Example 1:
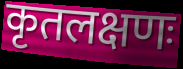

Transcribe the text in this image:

कृतलक्षणः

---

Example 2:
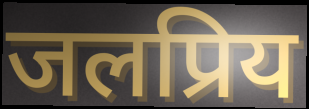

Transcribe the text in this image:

जलप्रिय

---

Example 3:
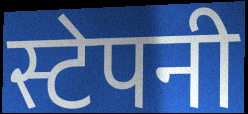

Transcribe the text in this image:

स्टेपनी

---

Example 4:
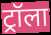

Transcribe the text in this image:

ट्रॉला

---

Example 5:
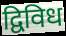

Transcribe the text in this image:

द्विविध